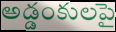
అడ్డంకులపై